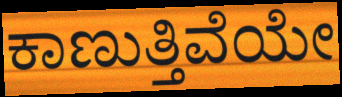
ಕಾಣುತ್ತಿವೆಯೇ